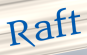
Raft